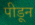
पीडून